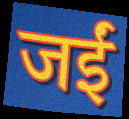
जईं